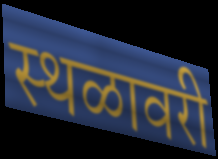
स्थळावरी